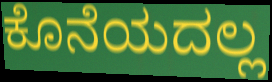
ಕೊನೆಯದಲ್ಲ